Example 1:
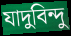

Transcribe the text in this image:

যাদুবিন্দু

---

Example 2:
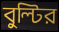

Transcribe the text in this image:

বুল্টির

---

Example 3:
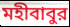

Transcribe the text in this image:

মহীবাবুর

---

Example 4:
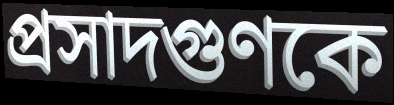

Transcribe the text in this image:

প্রসাদগুণকে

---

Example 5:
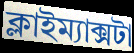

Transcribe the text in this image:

ক্লাইম্যাক্সটা